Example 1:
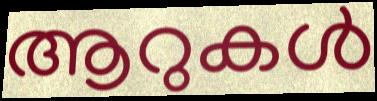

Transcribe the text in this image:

ആറുകൾ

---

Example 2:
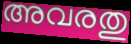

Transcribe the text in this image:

അവരതു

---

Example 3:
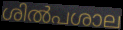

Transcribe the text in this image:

ശിൽപശാല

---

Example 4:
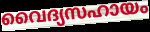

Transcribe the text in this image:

വൈദ്യസഹായം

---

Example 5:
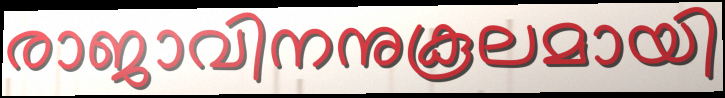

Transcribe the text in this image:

രാജാവിനനുകൂലമായി